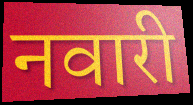
नवारी